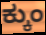
ಕ್ಕುಂ